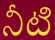
నీటి